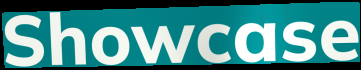
Showcase